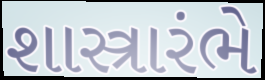
શાસ્ત્રારંભે